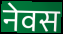
नेवस